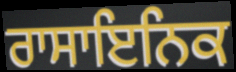
ਰਾਸਾਇਨਿਕ